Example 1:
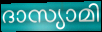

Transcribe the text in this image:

ദാസ്യാമി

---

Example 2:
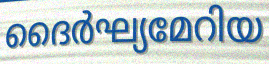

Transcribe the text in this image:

ദൈർഘ്യമേറിയ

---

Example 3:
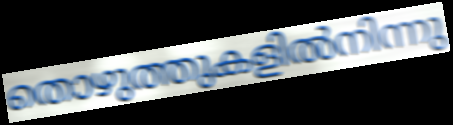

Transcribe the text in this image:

തൊഴുത്തുകളിൽനിന്നു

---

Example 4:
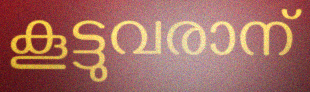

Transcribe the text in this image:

കൂട്ടുവരാന്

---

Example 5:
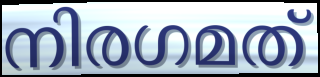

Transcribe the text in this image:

നിരഗമത്